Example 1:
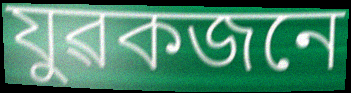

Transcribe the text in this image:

যুৱকজনে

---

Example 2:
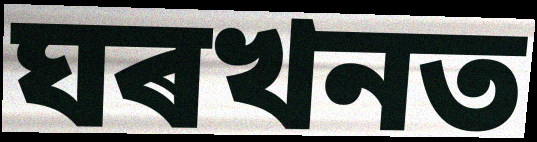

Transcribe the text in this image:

ঘৰখনত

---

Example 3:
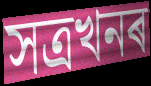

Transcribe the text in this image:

সত্ৰখনৰ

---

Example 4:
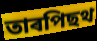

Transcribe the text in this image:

তাৰপিছথ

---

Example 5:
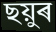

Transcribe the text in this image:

ছয়ুৰ